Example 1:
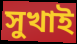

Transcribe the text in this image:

সুখাই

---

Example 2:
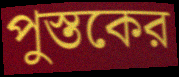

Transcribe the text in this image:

পুস্তকের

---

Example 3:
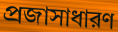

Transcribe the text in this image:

প্রজাসাধারণ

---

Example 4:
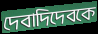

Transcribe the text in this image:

দেবাদিদেবকে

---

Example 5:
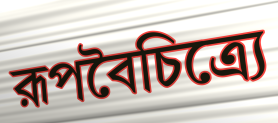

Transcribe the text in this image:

রূপবৈচিত্র্যে